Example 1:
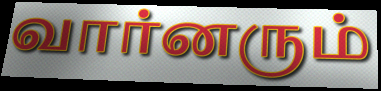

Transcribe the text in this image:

வார்னரும்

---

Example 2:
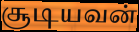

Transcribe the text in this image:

சூடியவன்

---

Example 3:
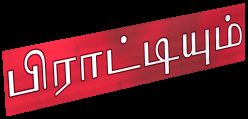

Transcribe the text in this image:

பிராட்டியும்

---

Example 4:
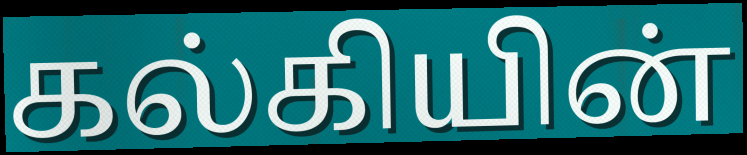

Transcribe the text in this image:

கல்கியின்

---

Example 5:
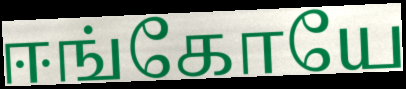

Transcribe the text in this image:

ஈங்கோயே